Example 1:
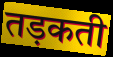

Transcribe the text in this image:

तड़कती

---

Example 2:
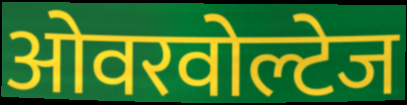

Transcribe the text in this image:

ओवरवोल्टेज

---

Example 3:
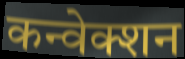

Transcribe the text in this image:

कन्वेक्शन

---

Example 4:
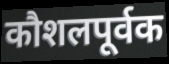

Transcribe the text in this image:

कौशलपूर्वक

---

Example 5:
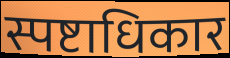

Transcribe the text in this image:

स्पष्टाधिकार